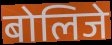
बोलिजे